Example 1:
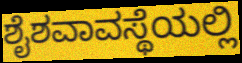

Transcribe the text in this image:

ಶೈಶವಾವಸ್ಥೆಯಲ್ಲಿ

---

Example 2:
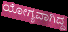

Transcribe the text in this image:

ಯೋಗ್ಯವಾಗಿದ್ದ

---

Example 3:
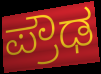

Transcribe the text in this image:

ಪ್ರೌಢ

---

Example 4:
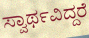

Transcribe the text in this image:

ಸ್ವಾರ್ಥವಿದ್ದರೆ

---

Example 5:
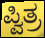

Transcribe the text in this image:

ಪ್ವಿತ್ರ